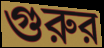
গুরুর